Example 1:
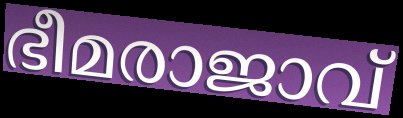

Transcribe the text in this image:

ഭീമരാജാവ്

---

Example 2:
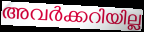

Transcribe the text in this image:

അവർക്കറിയില്ല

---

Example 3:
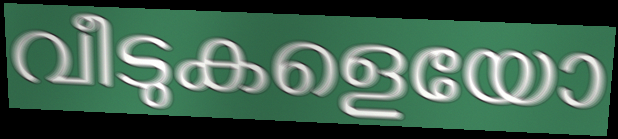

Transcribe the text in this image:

വീടുകളെയോ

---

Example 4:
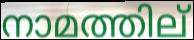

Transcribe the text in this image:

നാമത്തില്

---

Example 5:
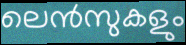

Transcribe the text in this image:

ലെൻസുകളും